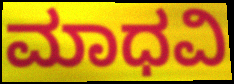
ಮಾಧವಿ